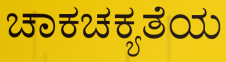
ಚಾಕಚಕ್ಯತೆಯ